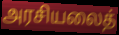
அரசியலைத்